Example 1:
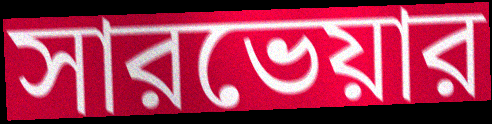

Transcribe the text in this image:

সারভেয়ার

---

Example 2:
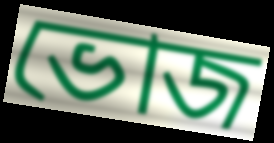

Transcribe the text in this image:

ভোজ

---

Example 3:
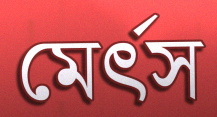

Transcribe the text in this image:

মের্ৎস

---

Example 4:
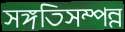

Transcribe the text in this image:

সঙ্গতিসম্পন্ন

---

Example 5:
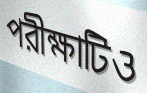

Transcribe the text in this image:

পরীক্ষাটিও